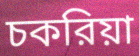
চকরিয়া